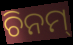
ଚିନମ୍